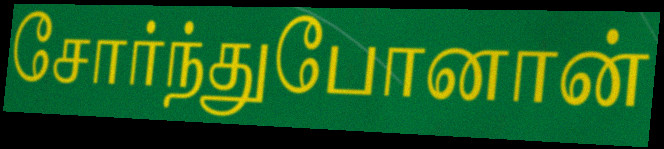
சோர்ந்துபோனான்